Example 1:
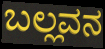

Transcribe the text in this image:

ಬಲ್ಲವನ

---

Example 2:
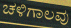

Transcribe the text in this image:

ಚಳಿಗಾಲವು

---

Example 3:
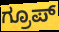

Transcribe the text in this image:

ಗ್ರೂಪ್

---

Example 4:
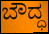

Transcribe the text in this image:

ಬೌದ್ಧ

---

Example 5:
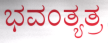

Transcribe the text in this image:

ಭವಂತ್ಯತ್ರ